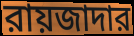
রায়জাদার